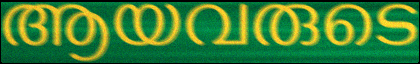
ആയവരുടെ